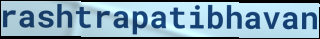
rashtrapatibhavan